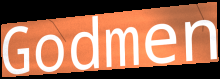
Godmen